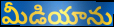
మీడియాను